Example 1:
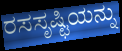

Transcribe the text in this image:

ರಸಸೃಷ್ಟಿಯನ್ನು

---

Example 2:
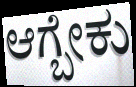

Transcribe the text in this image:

ಆಗ್ಬೇಕು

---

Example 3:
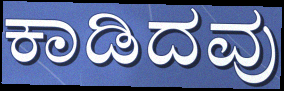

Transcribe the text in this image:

ಕಾಡಿದವು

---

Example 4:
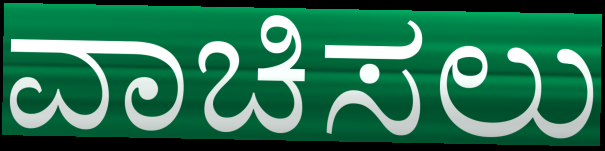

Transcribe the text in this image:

ವಾಚಿಸಲು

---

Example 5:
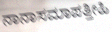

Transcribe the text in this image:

ನಾನಾಸಮಾಪತ್ತೀಹಿ